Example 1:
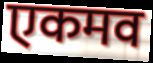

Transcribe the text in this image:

एकमव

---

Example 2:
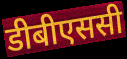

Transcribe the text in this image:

डीबीएससी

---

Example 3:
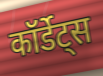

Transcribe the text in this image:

कॉर्डेट्स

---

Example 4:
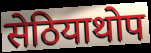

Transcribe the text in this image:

सेठियाथोप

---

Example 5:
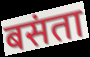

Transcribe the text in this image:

बसंता